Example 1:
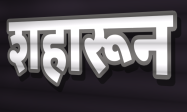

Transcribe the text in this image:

शहारून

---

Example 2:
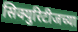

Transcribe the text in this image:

सिक्युरिटीजच्या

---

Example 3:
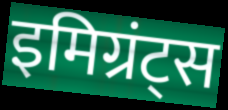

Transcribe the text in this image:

इमिग्रंट्स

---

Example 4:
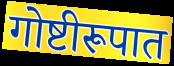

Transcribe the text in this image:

गोष्टीरूपात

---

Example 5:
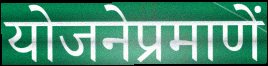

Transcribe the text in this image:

योजनेप्रमाणें